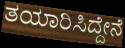
ತಯಾರಿಸಿದ್ದೇನೆ